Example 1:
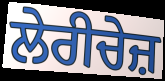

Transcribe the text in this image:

ਲੇਰੀਚੇਜ਼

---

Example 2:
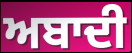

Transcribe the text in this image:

ਅਬਾਦੀ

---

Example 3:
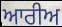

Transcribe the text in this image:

ਆਰੀਅ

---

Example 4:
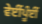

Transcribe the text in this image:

ਵੇਈਂਪੂੰਈਂ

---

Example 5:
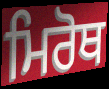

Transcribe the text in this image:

ਮਿਰੋਥ